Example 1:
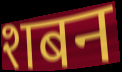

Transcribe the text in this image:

शबन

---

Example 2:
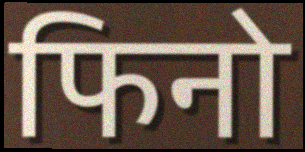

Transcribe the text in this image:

फिनो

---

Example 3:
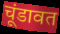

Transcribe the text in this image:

चूंडावत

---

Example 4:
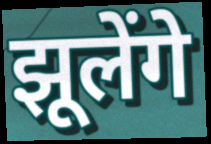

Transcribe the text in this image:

झूलेंगे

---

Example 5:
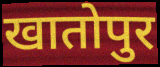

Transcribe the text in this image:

खातोपुर